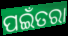
ପଇଁତରା